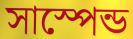
সাস্পেন্ড